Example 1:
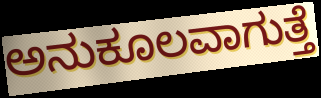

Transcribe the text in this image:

ಅನುಕೂಲವಾಗುತ್ತೆ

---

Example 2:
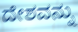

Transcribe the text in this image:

ದೇಶವನ್ನು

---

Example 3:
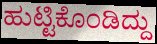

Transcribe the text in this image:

ಹುಟ್ಟಿಕೊಂಡಿದ್ದು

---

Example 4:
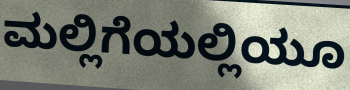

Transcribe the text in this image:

ಮಲ್ಲಿಗೆಯಲ್ಲಿಯೂ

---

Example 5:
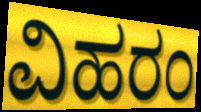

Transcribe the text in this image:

ವಿಹರಂ